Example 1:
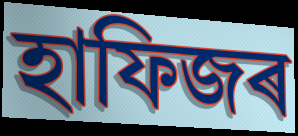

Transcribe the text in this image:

হাফিজৰ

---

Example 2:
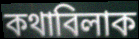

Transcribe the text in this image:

কথাবিলাক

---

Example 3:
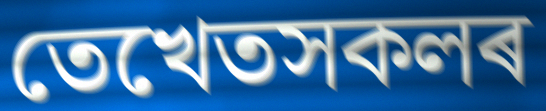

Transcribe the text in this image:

তেখেতসকলৰ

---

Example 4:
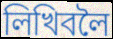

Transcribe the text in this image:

লিখিবলৈ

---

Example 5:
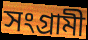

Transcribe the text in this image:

সংগ্ৰামী